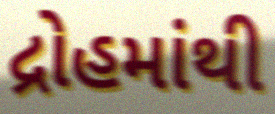
દ્રોહમાંથી